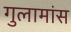
गुलामांस